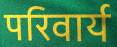
परिवार्य